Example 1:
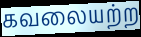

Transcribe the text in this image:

கவலையற்ற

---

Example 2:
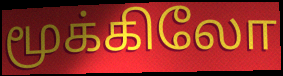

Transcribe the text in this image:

மூக்கிலோ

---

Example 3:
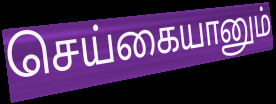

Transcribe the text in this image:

செய்கையானும்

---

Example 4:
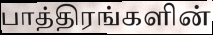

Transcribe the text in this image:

பாத்திரங்களின்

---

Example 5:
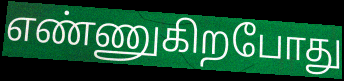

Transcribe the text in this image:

எண்ணுகிறபோது